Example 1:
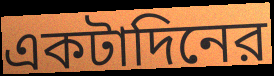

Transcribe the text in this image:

একটাদিনের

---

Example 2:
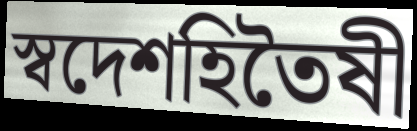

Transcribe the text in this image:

স্বদেশহিতৈষী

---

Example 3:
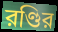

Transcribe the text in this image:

রণ্ডির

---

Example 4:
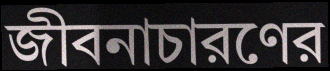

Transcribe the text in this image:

জীবনাচারণের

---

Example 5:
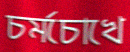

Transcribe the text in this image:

চর্মচোখে